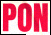
PON